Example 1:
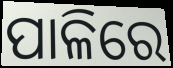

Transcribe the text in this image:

ପାଳିରେ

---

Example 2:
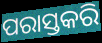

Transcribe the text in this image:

ପରାସ୍ତକରି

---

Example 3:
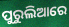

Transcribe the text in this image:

ପୁରୁଲିଆରେ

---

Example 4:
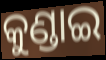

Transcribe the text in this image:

କୁଣ୍ଡାଇ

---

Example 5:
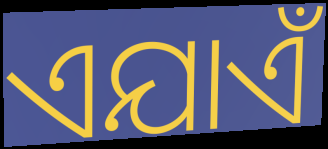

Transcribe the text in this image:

ଏଯାଏଁ